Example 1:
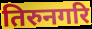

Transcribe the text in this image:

तिरुनगरि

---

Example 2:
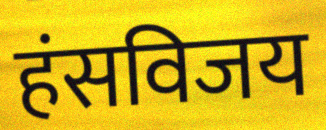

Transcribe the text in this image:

हंसविजय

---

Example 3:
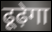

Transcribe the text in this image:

ढूढ़ेगा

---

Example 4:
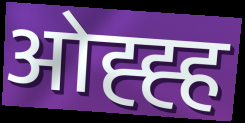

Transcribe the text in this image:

ओह्ह्ह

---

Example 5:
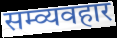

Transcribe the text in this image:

सम्व्यवहार